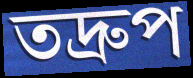
তদ্ৰুপ